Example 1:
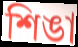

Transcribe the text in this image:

শিঙা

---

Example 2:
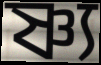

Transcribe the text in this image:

ষ্ণ্য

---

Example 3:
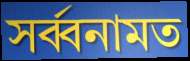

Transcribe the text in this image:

সৰ্ব্বনামত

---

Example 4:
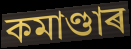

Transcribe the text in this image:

কমাণ্ডাৰ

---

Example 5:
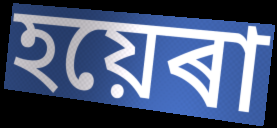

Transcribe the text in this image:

হয়েৰা